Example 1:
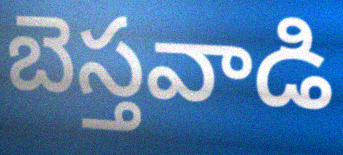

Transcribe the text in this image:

బెస్తవాడి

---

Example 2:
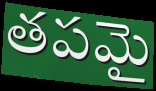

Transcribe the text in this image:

తపమై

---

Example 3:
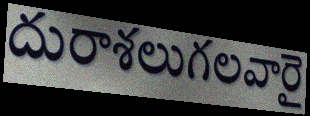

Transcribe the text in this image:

దురాశలుగలవారై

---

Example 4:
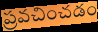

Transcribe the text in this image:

ప్రవచించడం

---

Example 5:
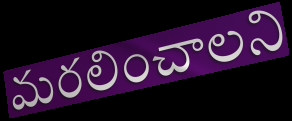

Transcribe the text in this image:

మరలించాలని